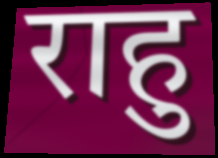
राहु